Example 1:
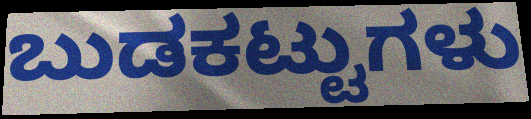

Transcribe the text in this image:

ಬುಡಕಟ್ಟುಗಳು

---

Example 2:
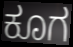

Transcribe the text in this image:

ಕೂಗ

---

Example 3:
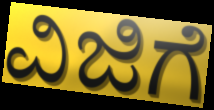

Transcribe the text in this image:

ವಿಜಿಗೆ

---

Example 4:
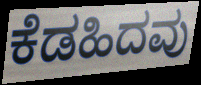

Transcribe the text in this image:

ಕೆಡಹಿದವು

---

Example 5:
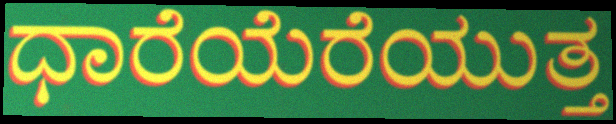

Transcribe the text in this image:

ಧಾರೆಯೆರೆಯುತ್ತ